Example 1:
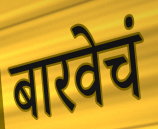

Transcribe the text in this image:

बारवेचं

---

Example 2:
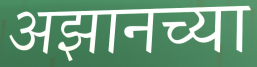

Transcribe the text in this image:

अझानच्या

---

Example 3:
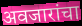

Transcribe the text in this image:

अवजारांचा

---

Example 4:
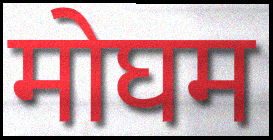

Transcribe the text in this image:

मोघम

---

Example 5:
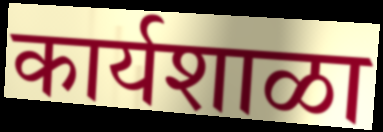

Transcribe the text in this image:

कार्यशाळा